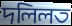
দলিলত